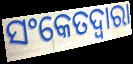
ସଂକେତଦ୍ୱାରା